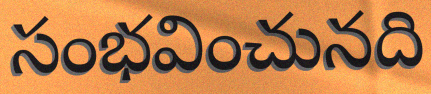
సంభవించునది